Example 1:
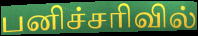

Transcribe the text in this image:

பனிச்சரிவில்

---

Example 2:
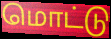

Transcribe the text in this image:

மொட்டு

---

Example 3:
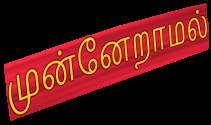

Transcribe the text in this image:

முன்னேறாமல்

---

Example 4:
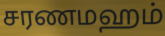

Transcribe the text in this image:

சரணமஹம்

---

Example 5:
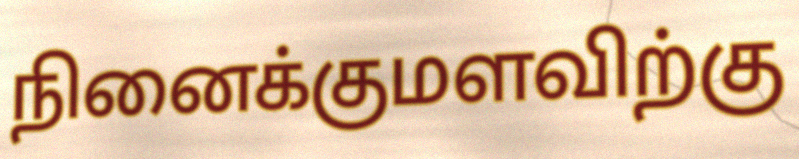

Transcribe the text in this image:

நினைக்குமளவிற்கு